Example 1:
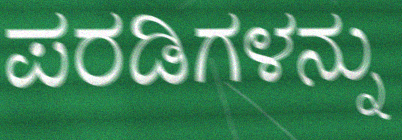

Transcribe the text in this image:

ಪರಡಿಗಳನ್ನು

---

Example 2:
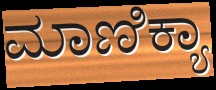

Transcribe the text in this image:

ಮಾಣಿಕ್ಯಾ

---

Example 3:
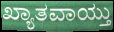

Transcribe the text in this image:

ಖ್ಯಾತವಾಯ್ತು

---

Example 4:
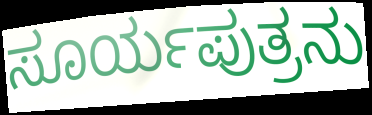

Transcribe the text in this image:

ಸೂರ್ಯಪುತ್ರನು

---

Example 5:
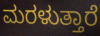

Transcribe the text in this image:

ಮರಳುತ್ತಾರೆ